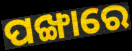
ପଙ୍ଖାରେ